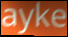
ayke